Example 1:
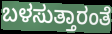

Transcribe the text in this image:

ಬಳಸುತ್ತಾರಂತೆ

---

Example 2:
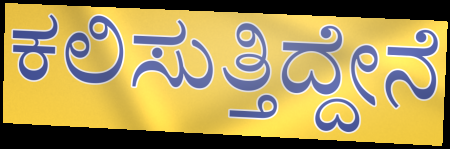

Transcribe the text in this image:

ಕಲಿಸುತ್ತಿದ್ದೇನೆ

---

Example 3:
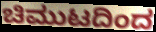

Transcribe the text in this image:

ಚಿಮುಟದಿಂದ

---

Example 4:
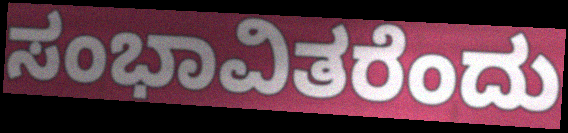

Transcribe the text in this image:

ಸಂಭಾವಿತರೆಂದು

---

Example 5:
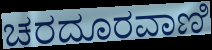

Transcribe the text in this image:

ಚರದೂರವಾಣಿ